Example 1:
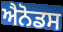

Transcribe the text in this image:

ਐਨੋਡਸ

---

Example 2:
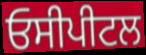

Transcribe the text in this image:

ਓਸੀਪੀਟਲ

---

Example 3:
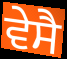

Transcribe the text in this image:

ਵੇਸੈ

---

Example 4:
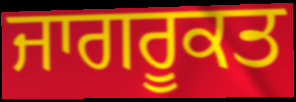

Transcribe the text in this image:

ਜਾਗਰੂਕਤ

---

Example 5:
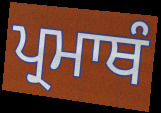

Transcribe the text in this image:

ਪ੍ਰਮਾਥੰ